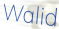
Walid